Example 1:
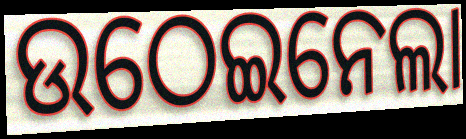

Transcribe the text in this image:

ଉଠେଇନେଲା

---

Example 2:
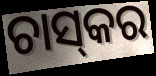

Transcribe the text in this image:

ଚାସ୍‌କର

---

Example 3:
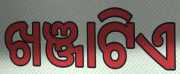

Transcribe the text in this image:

ଖଞ୍ଜାଟିଏ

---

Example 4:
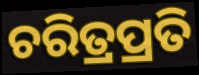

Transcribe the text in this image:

ଚରିତ୍ରପ୍ରତି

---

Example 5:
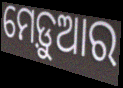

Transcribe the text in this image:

ମେଡ଼ୁଆର